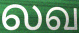
லவ